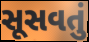
સૂસવતું